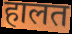
हालत